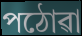
পঠোৱা